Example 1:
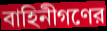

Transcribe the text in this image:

বাহিনীগণের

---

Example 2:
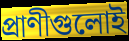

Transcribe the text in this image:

প্রাণীগুলোই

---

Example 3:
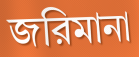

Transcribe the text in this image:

জরিমানা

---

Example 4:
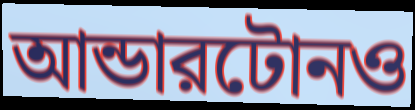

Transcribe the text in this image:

আন্ডারটোনও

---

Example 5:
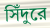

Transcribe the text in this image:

সিঁদুরে